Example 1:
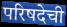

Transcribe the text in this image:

परिषदेची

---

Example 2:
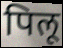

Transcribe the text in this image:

पिलू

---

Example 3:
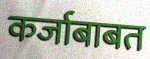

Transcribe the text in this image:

कर्जाबाबत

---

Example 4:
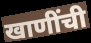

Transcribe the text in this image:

खाणींची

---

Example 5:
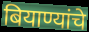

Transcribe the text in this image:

बियाण्यांचे